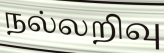
நல்லறிவு